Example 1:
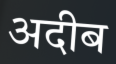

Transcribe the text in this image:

अदीब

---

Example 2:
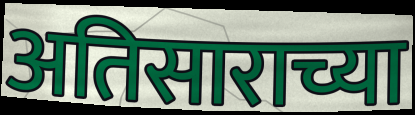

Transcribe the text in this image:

अतिसाराच्या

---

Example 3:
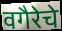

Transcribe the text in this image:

वगैरेचे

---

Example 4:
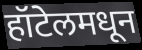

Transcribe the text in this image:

हॉटेलमधून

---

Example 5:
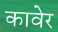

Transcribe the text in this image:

कावेर